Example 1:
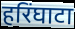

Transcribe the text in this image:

हरिंघाटा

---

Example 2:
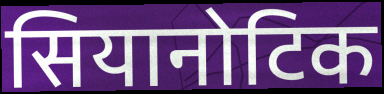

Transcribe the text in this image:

सियानोटिक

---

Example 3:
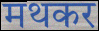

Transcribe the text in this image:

मथकर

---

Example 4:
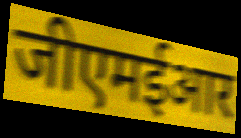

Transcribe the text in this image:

जीएमईआर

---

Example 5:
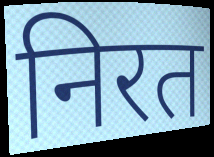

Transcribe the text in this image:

निरत